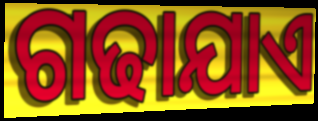
ଗଢାଯାଏ